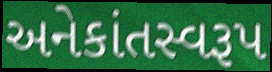
અનેકાંતસ્વરૂપ